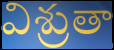
విశ్రుతా